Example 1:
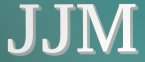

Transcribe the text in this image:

JJM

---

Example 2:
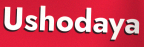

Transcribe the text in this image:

Ushodaya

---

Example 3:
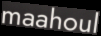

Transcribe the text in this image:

maahoul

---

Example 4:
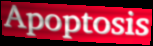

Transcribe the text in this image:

Apoptosis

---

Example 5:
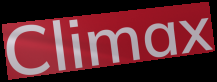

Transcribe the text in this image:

Climax